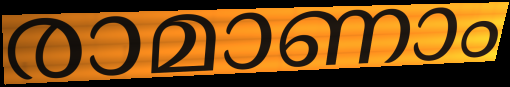
രാമാണാം